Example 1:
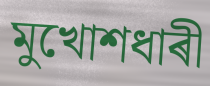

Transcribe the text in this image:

মুখোশধাৰী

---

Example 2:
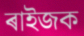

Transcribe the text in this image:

ৰাইজক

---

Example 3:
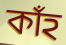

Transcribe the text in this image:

কাঁহ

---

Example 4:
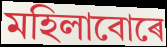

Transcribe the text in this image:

মহিলাবোৰে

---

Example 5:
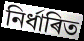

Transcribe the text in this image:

নিৰ্ধাৰিত